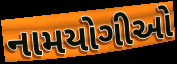
નામયોગીઓ